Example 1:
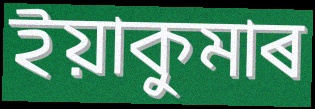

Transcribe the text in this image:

ইয়াকুমাৰ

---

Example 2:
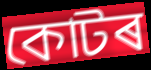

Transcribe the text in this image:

কোটৰ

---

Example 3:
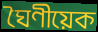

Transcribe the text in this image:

ঘৈণীয়েক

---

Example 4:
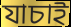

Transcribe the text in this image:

যাচাই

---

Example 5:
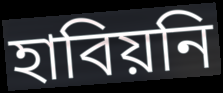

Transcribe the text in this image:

হাবিয়নি